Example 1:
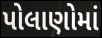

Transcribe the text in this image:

પોલાણોમાં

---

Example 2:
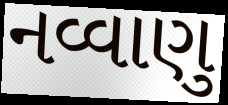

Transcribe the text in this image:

નવ્વાણુ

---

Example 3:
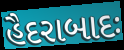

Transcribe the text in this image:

હૈદરાબાદઃ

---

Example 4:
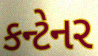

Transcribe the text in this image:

કન્ટેનર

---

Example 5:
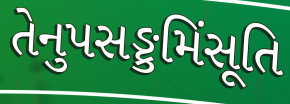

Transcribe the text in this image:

તેનુપસઙ્કમિંસૂતિ